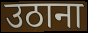
उठाना